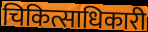
चिकित्साधिकारी